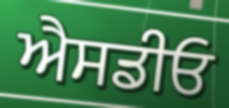
ਐਸਡੀਓ